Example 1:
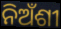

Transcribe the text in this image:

ନିଅଁଶୀ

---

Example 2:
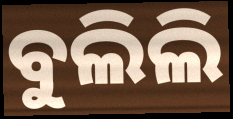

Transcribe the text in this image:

ବୁଲିଲି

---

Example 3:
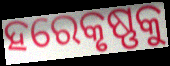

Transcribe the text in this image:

ହରେକୃଷ୍ଣକୁ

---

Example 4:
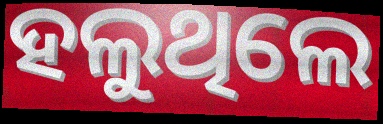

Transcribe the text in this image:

ହଲୁଥିଲେ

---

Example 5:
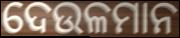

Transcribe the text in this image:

ଦେଉଳମାନ